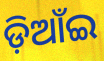
ଡ଼ିଆଁଇ